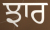
ਝਾਰ